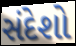
સંદેશો